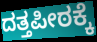
ದತ್ತಪೀಠಕ್ಕೆ